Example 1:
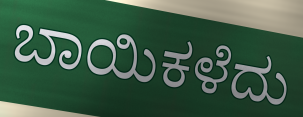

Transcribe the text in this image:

ಬಾಯಿಕಳೆದು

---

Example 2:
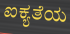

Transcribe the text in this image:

ಐಕ್ಯತೆಯ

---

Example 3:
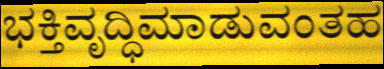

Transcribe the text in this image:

ಭಕ್ತಿವೃದ್ಧಿಮಾಡುವಂತಹ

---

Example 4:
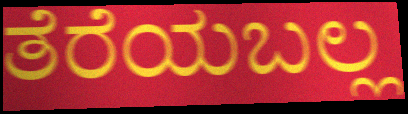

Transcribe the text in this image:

ತೆರೆಯಬಲ್ಲ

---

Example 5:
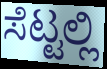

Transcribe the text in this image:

ಸೆಟ್ಟಲ್ಲಿ